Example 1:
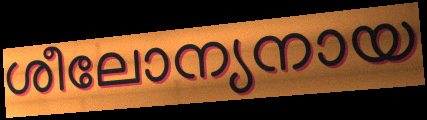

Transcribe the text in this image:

ശീലോന്യനായ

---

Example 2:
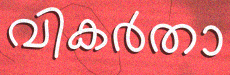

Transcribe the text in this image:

വികർതാ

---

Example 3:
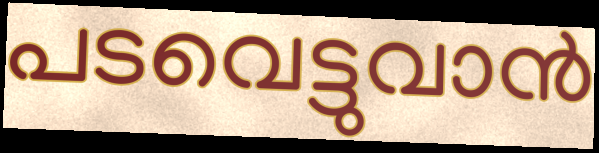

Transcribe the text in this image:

പടവെട്ടുവാൻ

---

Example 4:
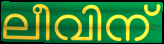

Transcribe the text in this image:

ലീവിന്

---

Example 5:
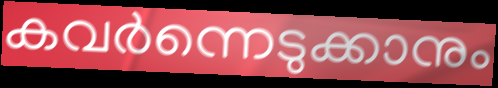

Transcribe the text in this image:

കവർന്നെടുക്കാനും